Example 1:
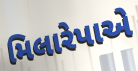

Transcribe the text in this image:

મિલારેપાએ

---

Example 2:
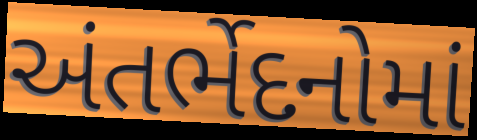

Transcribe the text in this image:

અંતર્ભેદનોમાં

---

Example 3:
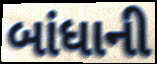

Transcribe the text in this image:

બાંધાની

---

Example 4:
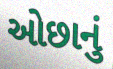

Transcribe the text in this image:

ઓછાનું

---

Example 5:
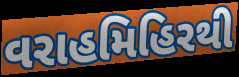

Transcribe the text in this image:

વરાહમિહિરથી